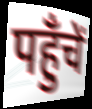
पहुँचें